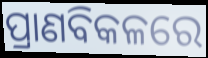
ପ୍ରାଣବିକଳରେ